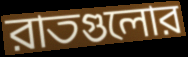
রাতগুলোর